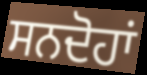
ਸਨਦੋਹਾਂ